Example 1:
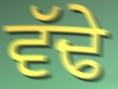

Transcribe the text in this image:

ਵੱਢੇ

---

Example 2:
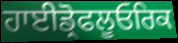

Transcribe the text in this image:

ਹਾਈਡ੍ਰੋਫਲੂਓਰਿਕ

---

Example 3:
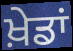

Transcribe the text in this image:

ਖ਼ੇਡਾਂ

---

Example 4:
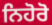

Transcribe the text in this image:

ਨਿਹੋਰੋ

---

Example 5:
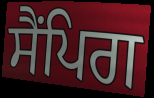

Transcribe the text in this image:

ਸੈਂਪਿਗ